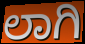
ಲಾಗಿ